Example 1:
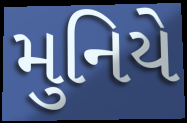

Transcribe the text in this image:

મુનિયે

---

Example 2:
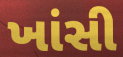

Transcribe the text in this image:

ખાંસી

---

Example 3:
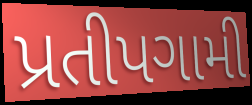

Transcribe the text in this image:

પ્રતીપગામી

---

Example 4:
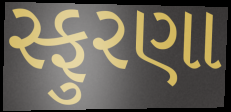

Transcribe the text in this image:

સ્ફુરણા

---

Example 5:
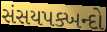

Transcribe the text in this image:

સંસયપક્ખન્દો